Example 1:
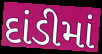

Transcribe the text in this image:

દાંડીમાં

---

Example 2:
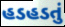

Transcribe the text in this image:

હડહડતું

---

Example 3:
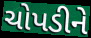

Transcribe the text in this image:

ચોપડીને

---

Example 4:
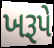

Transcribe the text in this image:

ખરૂપે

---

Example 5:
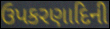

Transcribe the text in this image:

ઉપકરણાદિની